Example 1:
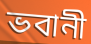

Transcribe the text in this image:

ভবানী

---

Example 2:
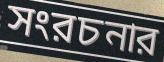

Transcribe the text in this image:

সংরচনার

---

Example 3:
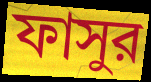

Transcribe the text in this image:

ফাসুর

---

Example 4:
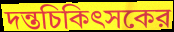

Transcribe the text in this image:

দন্তচিকিৎসকের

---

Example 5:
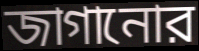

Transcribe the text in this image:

জাগানোর